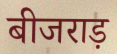
बीजराड़